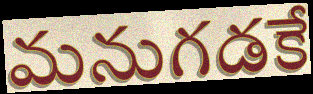
మనుగడకే